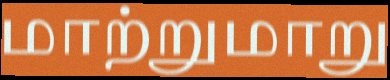
மாற்றுமாறு